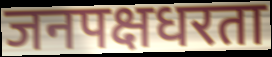
जनपक्षधरता